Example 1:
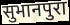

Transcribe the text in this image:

सुभानपुरा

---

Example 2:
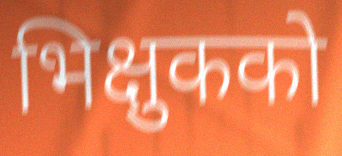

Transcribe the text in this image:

भिक्षुकको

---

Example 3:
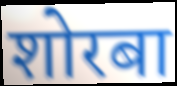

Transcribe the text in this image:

शोरबा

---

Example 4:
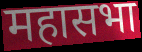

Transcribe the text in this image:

महासभा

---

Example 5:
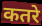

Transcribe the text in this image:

कतरे